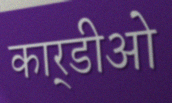
कार्डीओ